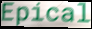
Epical